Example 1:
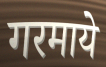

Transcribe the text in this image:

गरमाये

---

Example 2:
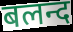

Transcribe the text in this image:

बलन्द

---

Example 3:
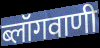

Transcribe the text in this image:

ब्लॉगवाणी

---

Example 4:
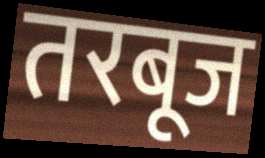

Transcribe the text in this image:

तरबूज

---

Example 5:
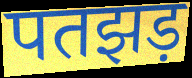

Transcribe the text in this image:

पतझड़